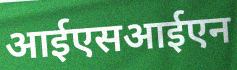
आईएसआईएन